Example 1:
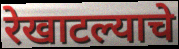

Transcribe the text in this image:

रेखाटल्याचे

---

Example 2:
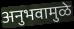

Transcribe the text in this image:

अनुभवामुळे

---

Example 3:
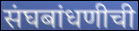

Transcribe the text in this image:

संघबांधणीची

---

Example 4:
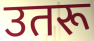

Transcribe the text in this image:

उतरू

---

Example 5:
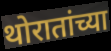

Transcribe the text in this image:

थोरातांच्या